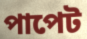
পাপেট